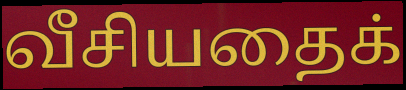
வீசியதைக்